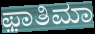
ಫ಼ಾತಿಮಾ